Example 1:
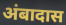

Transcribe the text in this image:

अंबादास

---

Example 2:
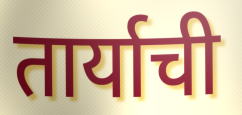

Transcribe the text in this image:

तार्याची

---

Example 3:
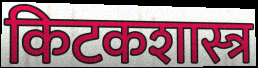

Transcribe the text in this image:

किटकशास्‍त्र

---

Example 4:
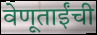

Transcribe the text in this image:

वेणूताईंची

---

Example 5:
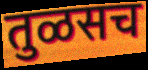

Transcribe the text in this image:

तुळसच